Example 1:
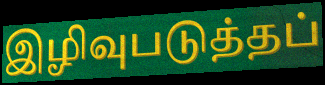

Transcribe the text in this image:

இழிவுபடுத்தப்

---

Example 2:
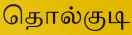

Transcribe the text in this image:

தொல்குடி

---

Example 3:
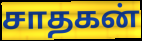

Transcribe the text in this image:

சாதகன்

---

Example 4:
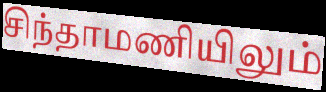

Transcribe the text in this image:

சிந்தாமணியிலும்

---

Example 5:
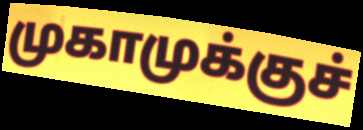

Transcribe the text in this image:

முகாமுக்குச்